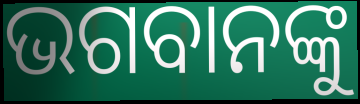
ଭଗବାନଙ୍କୁ